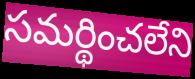
సమర్థించలేని